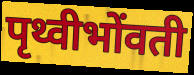
पृथ्वीभोंवती